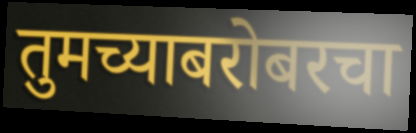
तुमच्याबरोबरचा